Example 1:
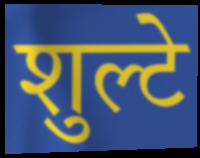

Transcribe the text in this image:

शुल्टे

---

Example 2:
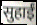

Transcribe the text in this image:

सुहाईं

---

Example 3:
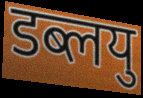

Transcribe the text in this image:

डब्लयु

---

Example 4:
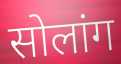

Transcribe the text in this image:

सोलांग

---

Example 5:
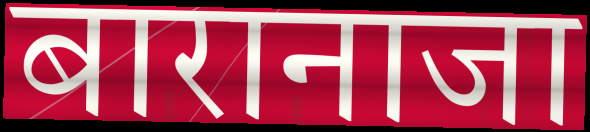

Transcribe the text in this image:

बारानाजा